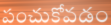
పంచుకోవడం